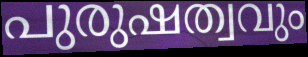
പുരുഷത്വവും